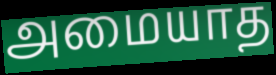
அமையாத